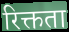
रिक्तता